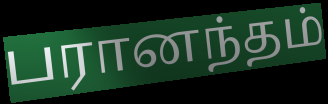
பரானந்தம்